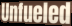
Unfueled